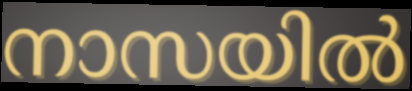
നാസയിൽ